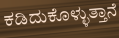
ಕಡಿದುಕೊಳ್ಳುತ್ತಾನೆ